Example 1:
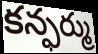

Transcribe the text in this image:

కన్ఫర్ము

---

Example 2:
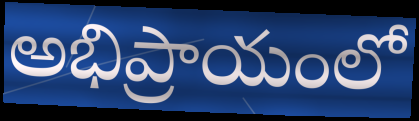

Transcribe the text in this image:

అభిప్రాయంలో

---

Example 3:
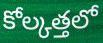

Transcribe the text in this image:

కోల్కత్తలో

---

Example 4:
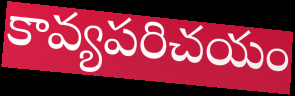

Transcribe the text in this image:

కావ్యపరిచయం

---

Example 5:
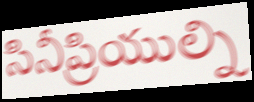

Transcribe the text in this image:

సినీప్రియుల్ని